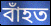
বাঁহত